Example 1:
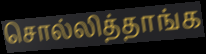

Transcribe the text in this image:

சொல்லித்தாங்க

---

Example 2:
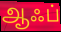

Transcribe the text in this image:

ஆஃப்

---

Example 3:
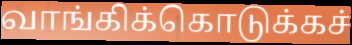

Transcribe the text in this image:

வாங்கிக்கொடுக்கச்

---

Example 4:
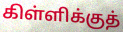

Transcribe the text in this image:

கிள்ளிக்குத்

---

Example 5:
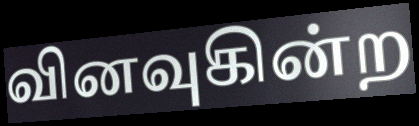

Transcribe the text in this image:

வினவுகின்ற